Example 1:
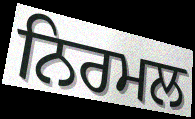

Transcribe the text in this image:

ਨਿਰਮਲ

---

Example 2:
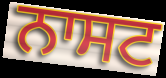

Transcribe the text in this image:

ਨਾਸਟ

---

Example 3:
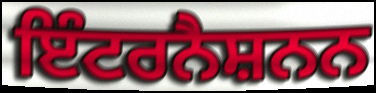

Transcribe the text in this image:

ਇੰਟਰਨੈਸ਼ਨਨ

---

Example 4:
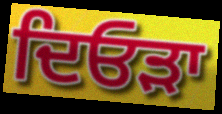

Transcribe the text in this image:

ਦਿਓੜਾ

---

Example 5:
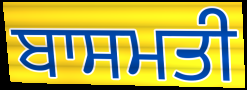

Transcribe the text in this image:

ਬਾਸਮਤੀ